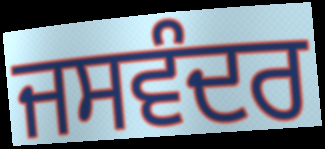
ਜਸਵੰਦਰ